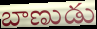
బాణుడు